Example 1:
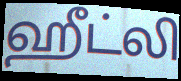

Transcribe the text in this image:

ஹீட்லி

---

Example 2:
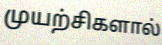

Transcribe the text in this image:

முயற்சிகளால்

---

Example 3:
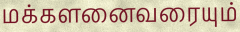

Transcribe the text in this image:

மக்களனைவரையும்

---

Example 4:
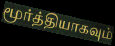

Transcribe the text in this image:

மூர்த்தியாகவும்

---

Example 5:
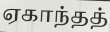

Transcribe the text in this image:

ஏகாந்தத்